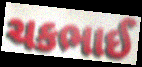
ચકભાઈ